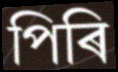
পিৰি